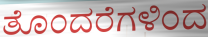
ತೊಂದರೆಗಳಿಂದ